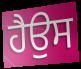
ਹੈਉਸ